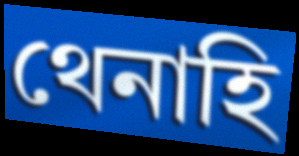
থেনাহি